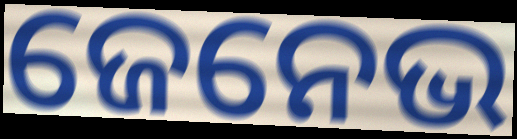
ଜେନେଭ